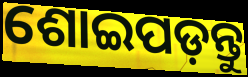
ଶୋଇପଡ଼ନ୍ତୁ